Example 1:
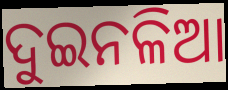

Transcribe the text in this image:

ଦୁଇନଳିଆ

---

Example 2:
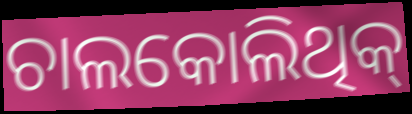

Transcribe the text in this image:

ଚାଲକୋଲିଥିକ୍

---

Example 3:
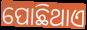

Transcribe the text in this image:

ପୋଛିଥାଏ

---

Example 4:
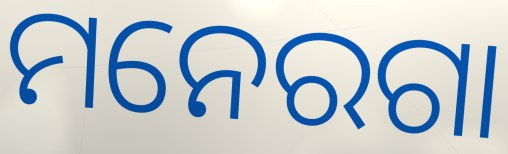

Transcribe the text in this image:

ମନେରଗା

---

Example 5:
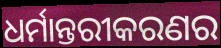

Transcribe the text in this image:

ଧର୍ମାନ୍ତରୀକରଣର